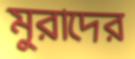
মুরাদের